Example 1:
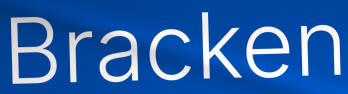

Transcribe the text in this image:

Bracken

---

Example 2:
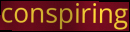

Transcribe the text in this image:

conspiring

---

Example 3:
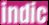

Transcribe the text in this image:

indic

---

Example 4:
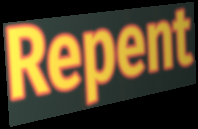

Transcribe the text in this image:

Repent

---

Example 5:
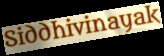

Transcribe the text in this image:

Siddhivinayak